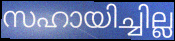
സഹായിച്ചില്ല